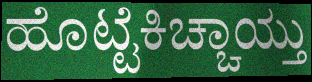
ಹೊಟ್ಟೆಕಿಚ್ಚಾಯ್ತು